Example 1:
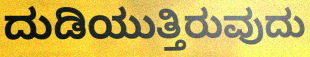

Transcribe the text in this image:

ದುಡಿಯುತ್ತಿರುವುದು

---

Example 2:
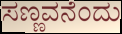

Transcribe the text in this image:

ಸಣ್ಣವನೆಂದು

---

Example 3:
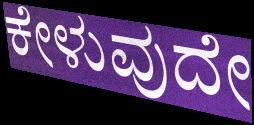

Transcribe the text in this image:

ಕೇಳುವುದೇ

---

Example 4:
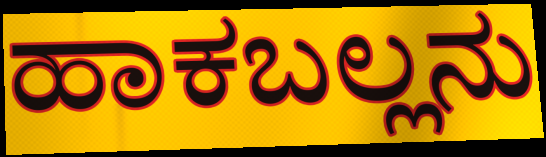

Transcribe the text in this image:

ಹಾಕಬಲ್ಲನು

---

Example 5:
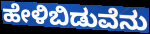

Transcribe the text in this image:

ಹೇಳಿಬಿಡುವೆನು